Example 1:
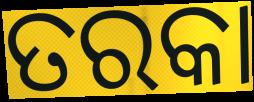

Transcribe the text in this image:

ତରକା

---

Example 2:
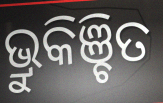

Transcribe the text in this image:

ଭ୍ରୁକିଞ୍ଚିତ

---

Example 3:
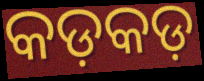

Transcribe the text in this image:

କଡ଼କଡ଼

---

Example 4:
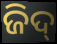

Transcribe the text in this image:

ଜିଦ୍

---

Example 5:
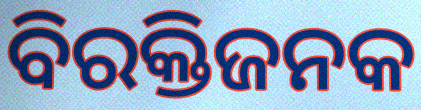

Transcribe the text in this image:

ବିରକ୍ତିଜନକ